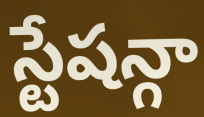
స్టేషన్గా